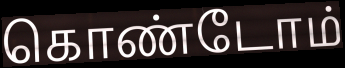
கொண்டோம்